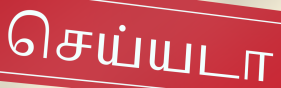
செய்யடா